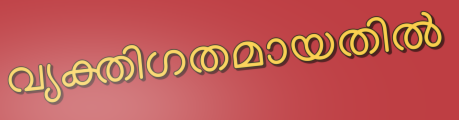
വ്യക്തിഗതമായതിൽ